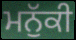
ਮਨੁੱਕੀ